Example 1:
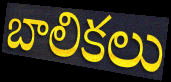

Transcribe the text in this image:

బాలికలు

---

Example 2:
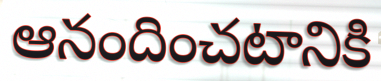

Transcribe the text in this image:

ఆనందించటానికి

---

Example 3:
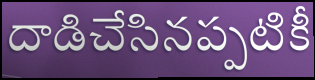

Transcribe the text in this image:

దాడిచేసినప్పటికీ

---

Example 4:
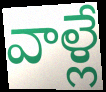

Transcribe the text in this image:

వాళ్లే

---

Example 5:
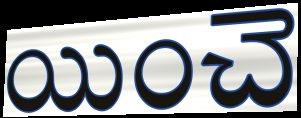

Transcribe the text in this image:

యించె